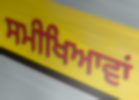
ਸਮੀਖਿਆਵਾਂ